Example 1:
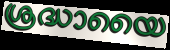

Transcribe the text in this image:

ശ്രദ്ധായൈ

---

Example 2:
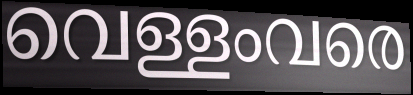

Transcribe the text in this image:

വെള്ളംവരെ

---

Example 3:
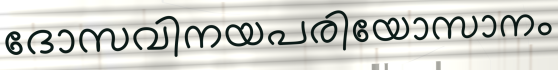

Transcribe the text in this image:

ദോസവിനയപരിയോസാനം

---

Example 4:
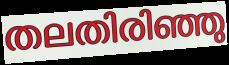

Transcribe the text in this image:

തലതിരിഞ്ഞു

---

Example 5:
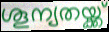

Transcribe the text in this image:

ശൂന്യതയ്ക്ക്